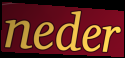
neder